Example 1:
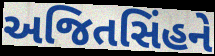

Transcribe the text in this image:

અજિતસિંહને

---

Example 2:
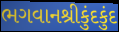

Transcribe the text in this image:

ભગવાનશ્રીકુંદકુંદ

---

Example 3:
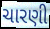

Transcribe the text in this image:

ચારણી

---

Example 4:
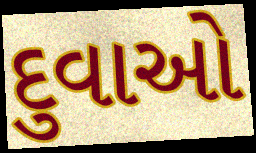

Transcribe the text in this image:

દુવાઓ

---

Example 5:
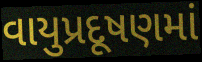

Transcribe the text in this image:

વાયુપ્રદૂષણમાં